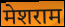
मेशराम